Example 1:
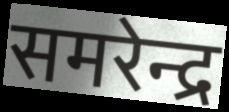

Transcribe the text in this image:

समरेन्द्र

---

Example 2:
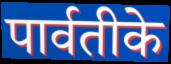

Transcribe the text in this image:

पार्वतीके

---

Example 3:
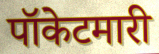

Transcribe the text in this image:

पॉकेटमारी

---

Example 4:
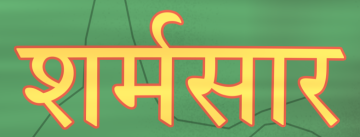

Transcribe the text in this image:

शर्मसार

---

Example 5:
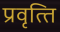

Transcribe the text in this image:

प्रवृत्‍ति